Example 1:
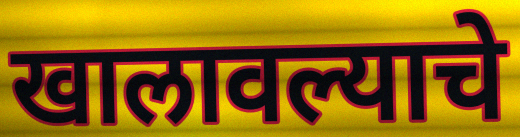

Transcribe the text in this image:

खालावल्याचे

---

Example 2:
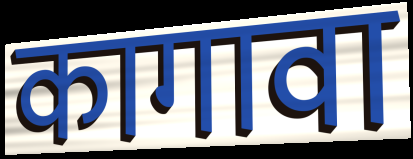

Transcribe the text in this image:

कागावा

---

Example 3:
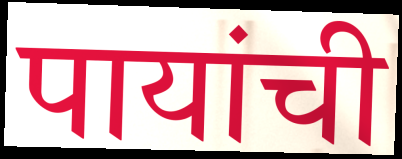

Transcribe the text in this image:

पायांची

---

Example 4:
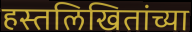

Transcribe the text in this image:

हस्तलिखितांच्या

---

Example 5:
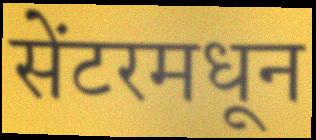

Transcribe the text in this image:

सेंटरमधून